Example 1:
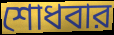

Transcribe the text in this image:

শোধবার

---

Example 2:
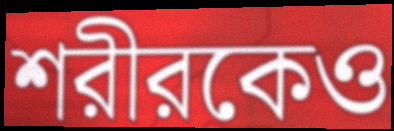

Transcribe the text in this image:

শরীরকেও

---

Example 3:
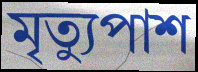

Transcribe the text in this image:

মৃত্যুপাশ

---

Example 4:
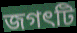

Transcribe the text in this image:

জগৎটি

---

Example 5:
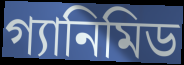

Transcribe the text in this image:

গ্যানিমিড